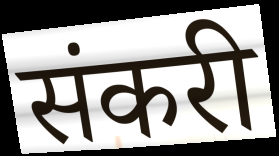
संकरी